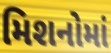
મિશનોમાં